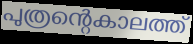
പുത്രന്റെകാലത്ത്